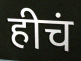
हीचं